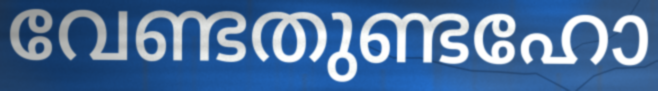
വേണ്ടതുണ്ടഹോ